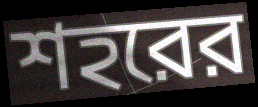
শহরের